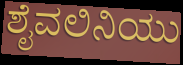
ಶೈವಲಿನಿಯು